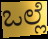
ಒಲ್ಲೆ